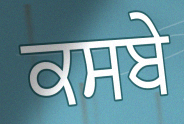
ਕਸਬੇ